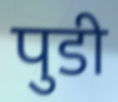
पुडी